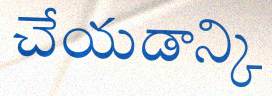
చేయడాన్కి